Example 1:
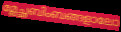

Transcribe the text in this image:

മ്ലേച്ഛബിംബങ്ങളാലോ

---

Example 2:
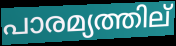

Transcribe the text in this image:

പാരമ്യത്തില്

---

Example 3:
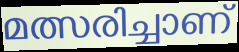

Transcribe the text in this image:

മത്സരിച്ചാണ്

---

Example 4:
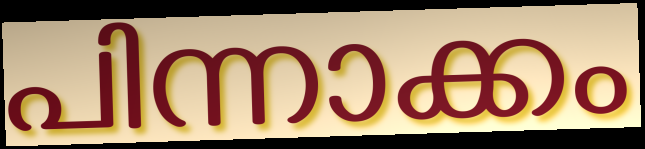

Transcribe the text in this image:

പിന്നാക്കം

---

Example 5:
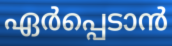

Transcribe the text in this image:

ഏർപ്പെടാൻ